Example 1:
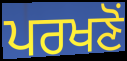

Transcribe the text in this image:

ਪਰਖਣੋਂ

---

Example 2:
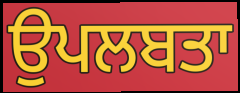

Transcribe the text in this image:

ਉਪਲਬਤਾ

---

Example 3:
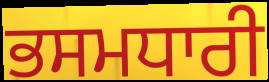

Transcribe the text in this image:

ਭਸਮਧਾਰੀ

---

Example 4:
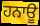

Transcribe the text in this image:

ਹਨਾਊ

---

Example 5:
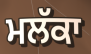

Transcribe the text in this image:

ਮਲੱਕਾ